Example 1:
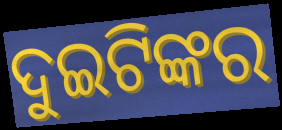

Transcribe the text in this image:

ଦୁଇଟିଙ୍କର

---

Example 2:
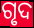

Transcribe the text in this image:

ଗୃଦ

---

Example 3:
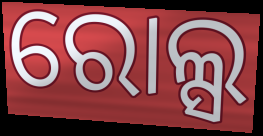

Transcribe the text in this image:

ରୋଲ୍ସ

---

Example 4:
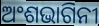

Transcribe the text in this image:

ଅଂଶଭାଗିନୀ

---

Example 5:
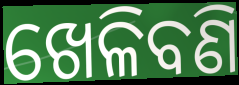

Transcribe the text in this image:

ଖେଳିବଣି